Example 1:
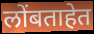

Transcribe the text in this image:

लोंबताहेत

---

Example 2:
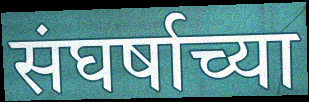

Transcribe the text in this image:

संघर्षाच्या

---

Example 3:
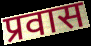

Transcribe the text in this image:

प्रवास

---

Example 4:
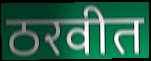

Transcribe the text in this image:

ठरवीत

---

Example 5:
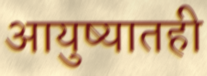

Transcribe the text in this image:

आयुष्यातही